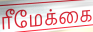
ரீமேக்கை